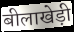
बीलाखेड़ी